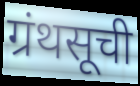
ग्रंथसूची